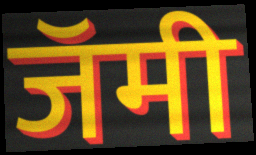
जॅमी